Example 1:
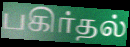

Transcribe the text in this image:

பகிர்தல்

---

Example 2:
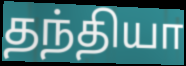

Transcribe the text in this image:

தந்தியா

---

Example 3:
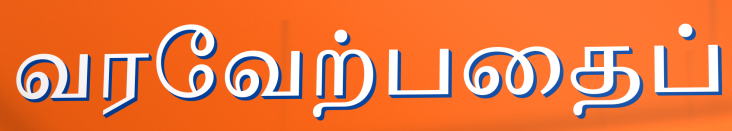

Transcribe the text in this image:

வரவேற்பதைப்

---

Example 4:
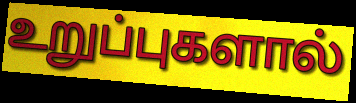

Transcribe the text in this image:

உறுப்புகளால்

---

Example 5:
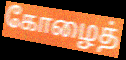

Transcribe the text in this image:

கோழைத்